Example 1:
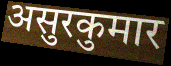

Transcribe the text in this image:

असुरकुमार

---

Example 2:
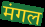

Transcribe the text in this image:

मंगल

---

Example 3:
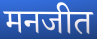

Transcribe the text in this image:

मनजीत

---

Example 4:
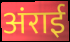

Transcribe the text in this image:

अंराई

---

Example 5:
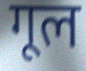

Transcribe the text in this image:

गूल